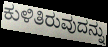
ಕುಳಿತಿರುವುದನ್ನು